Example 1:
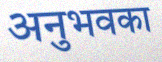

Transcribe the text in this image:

अनुभवका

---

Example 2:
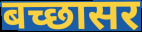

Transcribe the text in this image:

बच्छासर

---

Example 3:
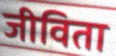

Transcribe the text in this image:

जीविता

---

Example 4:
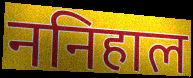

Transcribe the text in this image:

ननिहाल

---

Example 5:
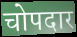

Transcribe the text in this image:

चोपदार